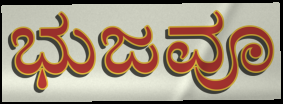
ಭುಜವೂ